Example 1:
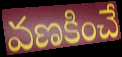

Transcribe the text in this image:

వణకించే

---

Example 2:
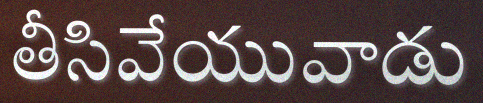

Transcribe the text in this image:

తీసివేయువాడు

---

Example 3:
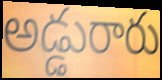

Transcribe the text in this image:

అడ్డురారు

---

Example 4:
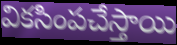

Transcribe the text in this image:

వికసింపచేస్తాయి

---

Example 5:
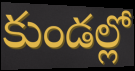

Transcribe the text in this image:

కుండల్లో